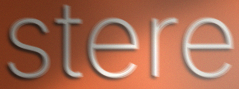
stere